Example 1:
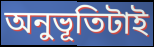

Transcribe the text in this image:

অনুভূতিটাই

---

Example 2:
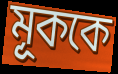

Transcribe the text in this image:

মূককে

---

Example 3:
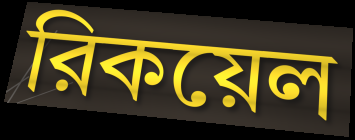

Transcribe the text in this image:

রিকয়েল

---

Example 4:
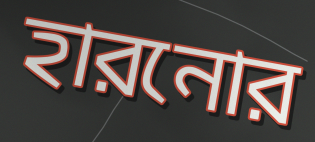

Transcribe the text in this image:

হারনোর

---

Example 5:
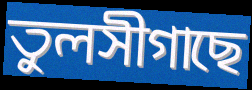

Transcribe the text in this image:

তুলসীগাছে